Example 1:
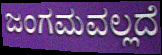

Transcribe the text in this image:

ಜಂಗಮವಲ್ಲದೆ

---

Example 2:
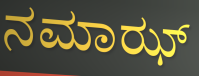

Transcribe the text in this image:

ನಮಾಝ್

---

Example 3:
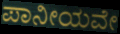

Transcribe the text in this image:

ಪಾನೀಯವೇ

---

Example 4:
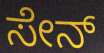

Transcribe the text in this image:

ಸೇನ್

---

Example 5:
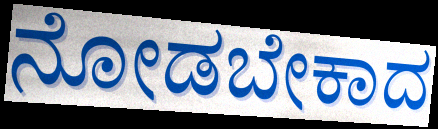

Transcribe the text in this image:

ನೋಡಬೇಕಾದ